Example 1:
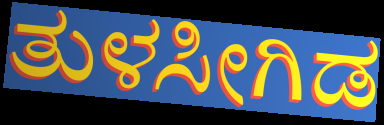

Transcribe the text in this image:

ತುಳಸೀಗಿಡ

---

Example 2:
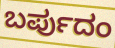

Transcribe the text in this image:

ಬರ್ಪುದಂ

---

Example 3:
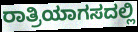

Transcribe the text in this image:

ರಾತ್ರಿಯಾಗಸದಲ್ಲಿ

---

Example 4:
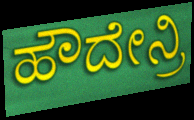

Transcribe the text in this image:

ಹೌದೇನ್ರಿ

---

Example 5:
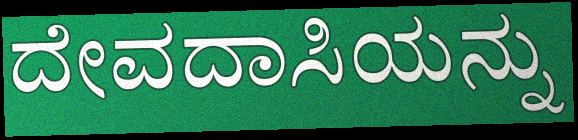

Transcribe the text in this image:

ದೇವದಾಸಿಯನ್ನು